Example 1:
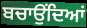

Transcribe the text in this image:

ਬਚਾਉਂਦਿਆਂ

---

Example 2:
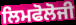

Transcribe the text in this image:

ਲਿਮਫੋਲੋਜੀ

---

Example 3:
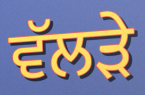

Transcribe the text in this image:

ਵੱਲੜੇ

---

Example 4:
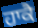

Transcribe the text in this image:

ਹਾਕੈ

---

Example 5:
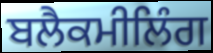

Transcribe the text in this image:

ਬਲੈਕਮੀਲਿੰਗ